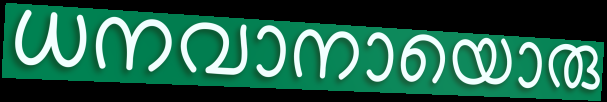
ധനവാനായൊരു